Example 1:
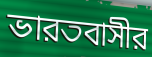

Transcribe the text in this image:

ভারতবাসীর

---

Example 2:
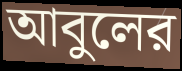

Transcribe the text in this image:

আবুলের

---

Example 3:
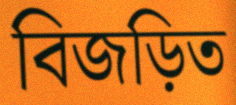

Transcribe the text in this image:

বিজড়িত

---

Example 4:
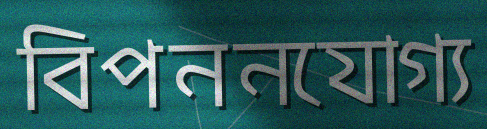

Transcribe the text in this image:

বিপননযোগ্য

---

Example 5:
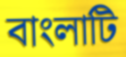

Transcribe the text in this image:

বাংলাটি